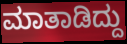
ಮಾತಾಡಿದ್ದು